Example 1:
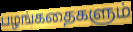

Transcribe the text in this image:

பழங்கதைகளும்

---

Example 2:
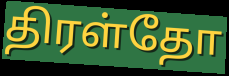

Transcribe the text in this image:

திரள்தோ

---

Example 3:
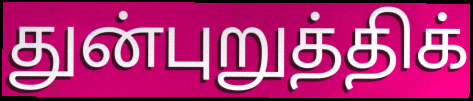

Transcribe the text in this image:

துன்புறுத்திக்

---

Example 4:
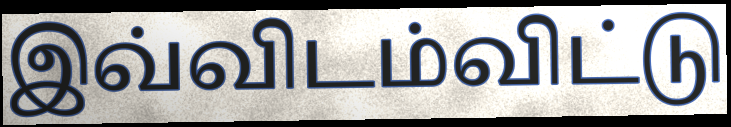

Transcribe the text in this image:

இவ்விடம்விட்டு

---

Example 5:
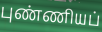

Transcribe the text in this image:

புண்ணியப்